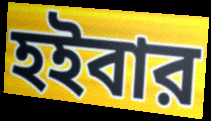
হইবার